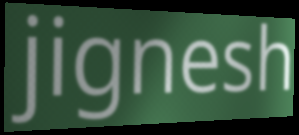
jignesh